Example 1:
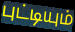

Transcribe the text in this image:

புட்டியும்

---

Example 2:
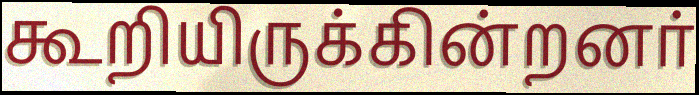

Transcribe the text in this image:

கூறியிருக்கின்றனர்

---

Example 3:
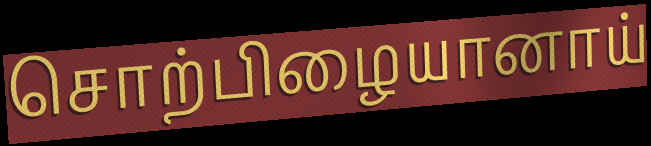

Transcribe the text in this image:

சொற்பிழையானாய்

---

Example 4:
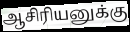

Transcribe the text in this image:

ஆசிரியனுக்கு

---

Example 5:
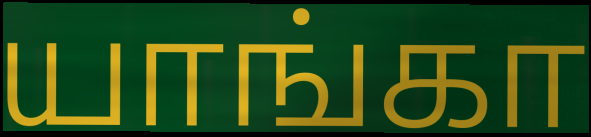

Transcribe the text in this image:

யாங்கா